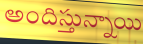
అందిస్తున్నాయి